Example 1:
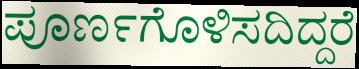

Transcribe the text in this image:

ಪೂರ್ಣಗೊಳಿಸದಿದ್ದರೆ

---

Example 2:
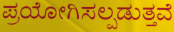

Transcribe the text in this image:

ಪ್ರಯೋಗಿಸಲ್ಪಡುತ್ತವೆ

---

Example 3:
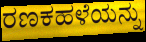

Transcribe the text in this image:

ರಣಕಹಳೆಯನ್ನು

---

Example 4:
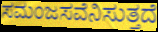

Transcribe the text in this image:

ಸಮಂಜಸವೆನಿಸುತ್ತದೆ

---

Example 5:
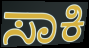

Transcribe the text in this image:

ಸಾಕಿ